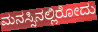
ಮನಸ್ಸಿನಲ್ಲಿರೋದು